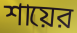
শায়ের